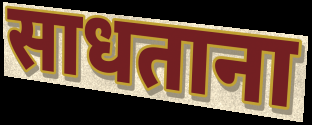
साधताना